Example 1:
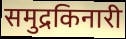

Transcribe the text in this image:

समुद्रकिनारी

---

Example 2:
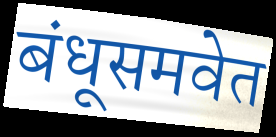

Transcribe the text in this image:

बंधूसमवेत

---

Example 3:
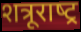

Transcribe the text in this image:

शत्रूराष्ट्र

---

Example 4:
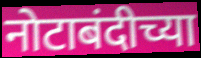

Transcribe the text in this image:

नोटाबंदीच्या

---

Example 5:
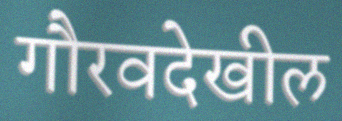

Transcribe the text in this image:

गौरवदेखील